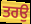
ਤਰਉ